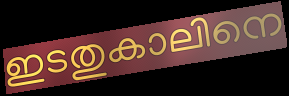
ഇടതുകാലിനെ